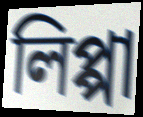
লিপ্পা